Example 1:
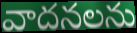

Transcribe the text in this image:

వాదనలను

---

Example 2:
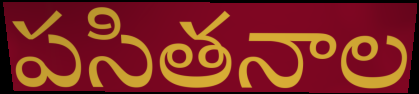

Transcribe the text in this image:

పసితనాల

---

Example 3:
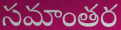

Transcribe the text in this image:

సమాంతర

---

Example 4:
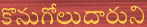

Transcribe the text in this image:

కొనుగోలుదారుని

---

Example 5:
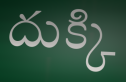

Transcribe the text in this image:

దుక్కి